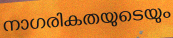
നാഗരികതയുടെയും